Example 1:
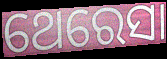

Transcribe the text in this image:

ଥେରେସା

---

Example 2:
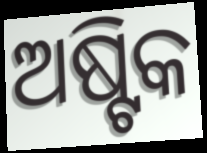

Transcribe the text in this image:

ଅଷ୍ଟିକ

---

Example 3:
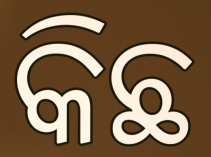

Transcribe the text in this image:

କିଛ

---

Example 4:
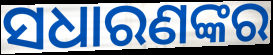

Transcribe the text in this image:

ସଧାରଣଙ୍କର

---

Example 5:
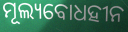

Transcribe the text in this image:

ମୂଲ୍ୟବୋଧହୀନ